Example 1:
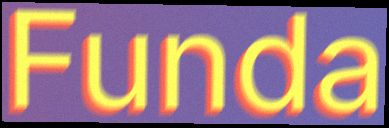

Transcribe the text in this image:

Funda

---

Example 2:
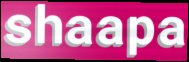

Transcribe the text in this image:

shaapa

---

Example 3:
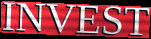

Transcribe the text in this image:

INVEST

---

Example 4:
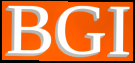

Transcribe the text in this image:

BGI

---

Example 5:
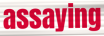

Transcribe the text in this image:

assaying